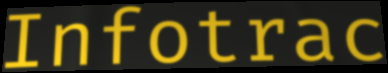
Infotrac